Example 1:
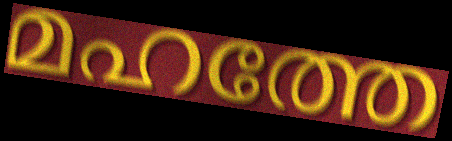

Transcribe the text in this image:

മഹത്തേ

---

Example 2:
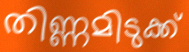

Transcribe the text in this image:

തിണ്ണമിടുക്ക്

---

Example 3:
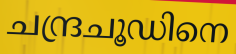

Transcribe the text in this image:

ചന്ദ്രചൂഡിനെ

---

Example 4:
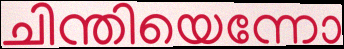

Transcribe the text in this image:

ചിന്തിയെന്നോ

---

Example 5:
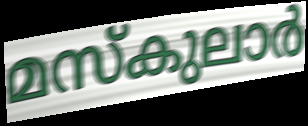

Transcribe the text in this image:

മസ്കുലാർ